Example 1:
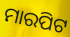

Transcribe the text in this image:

ମାରପିଟ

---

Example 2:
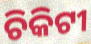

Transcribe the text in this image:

ଚିକିଟୀ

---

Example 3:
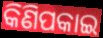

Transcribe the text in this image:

କିଣିପକାଇ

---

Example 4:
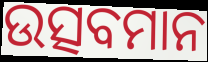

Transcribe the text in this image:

ଉତ୍ସବମାନ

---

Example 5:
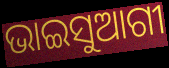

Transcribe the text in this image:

ଭାଇସୁଆଗୀ